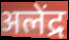
अलेंद्र